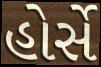
હોર્સે